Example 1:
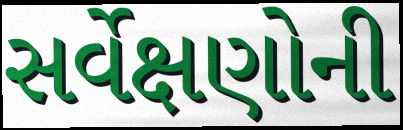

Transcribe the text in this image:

સર્વેક્ષણોની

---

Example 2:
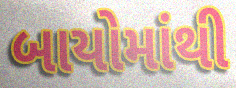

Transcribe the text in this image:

બાયોમાંથી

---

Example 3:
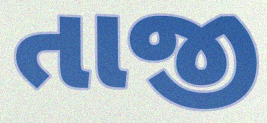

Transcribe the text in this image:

તાજી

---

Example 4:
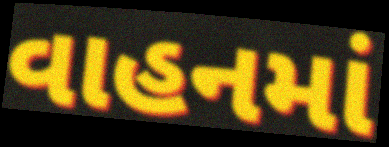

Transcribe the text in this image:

વાહનમાં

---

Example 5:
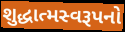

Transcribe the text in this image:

શુદ્ધાત્મસ્વરૂપનો